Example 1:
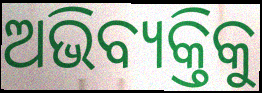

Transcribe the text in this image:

ଅଭିବ୍ୟକ୍ତିକୁ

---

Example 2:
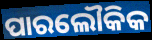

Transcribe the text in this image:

ପାରଲୌକିକ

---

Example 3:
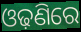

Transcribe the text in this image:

ଓଢ଼ଣିରେ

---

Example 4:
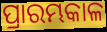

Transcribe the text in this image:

ପ୍ରାରମ୍ଭକାଳ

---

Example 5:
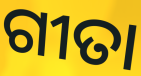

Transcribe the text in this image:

ଗୀତା